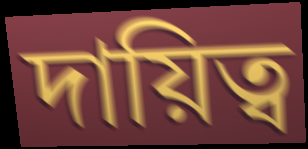
দায়িত্ব